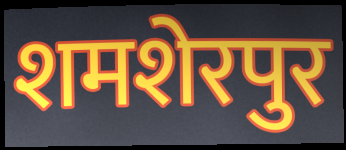
शमशेरपुर